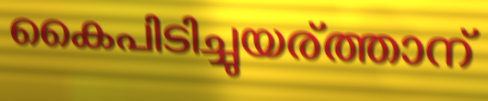
കൈപിടിച്ചുയര്ത്താന്